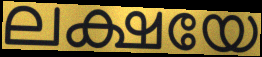
ലക്ഷയേ